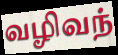
வழிவந்